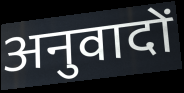
अनुवादों